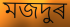
মজদুৰ